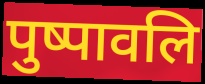
पुष्पावलि